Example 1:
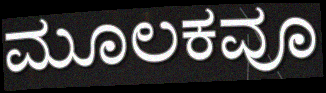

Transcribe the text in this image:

ಮೂಲಕವೂ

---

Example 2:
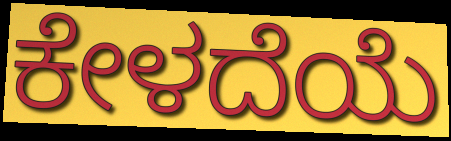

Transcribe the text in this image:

ಕೇಳದೆಯೆ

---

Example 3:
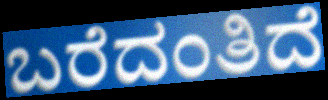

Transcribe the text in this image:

ಬರೆದಂತಿದೆ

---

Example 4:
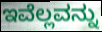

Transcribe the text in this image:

ಇವೆಲ್ಲವನ್ನು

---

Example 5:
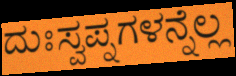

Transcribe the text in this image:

ದುಃಸ್ವಪ್ನಗಳನ್ನೆಲ್ಲ